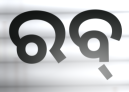
ରବ୍